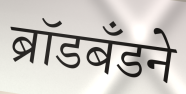
ब्रॉडबँडने